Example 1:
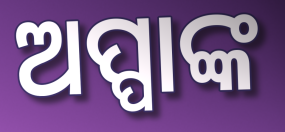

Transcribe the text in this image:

ଅପ୍ପାଙ୍କ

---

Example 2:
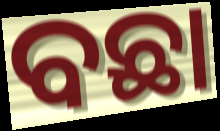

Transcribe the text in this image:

ବଛା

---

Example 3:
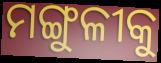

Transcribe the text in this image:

ମଙ୍ଗୁଳୀକୁ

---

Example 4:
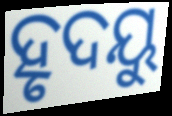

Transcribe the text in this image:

ହୃଦୟୁ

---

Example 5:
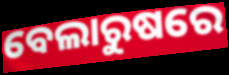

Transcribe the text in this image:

ବେଲାରୁଷରେ